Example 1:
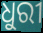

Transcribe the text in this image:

ଧୁରୀ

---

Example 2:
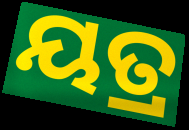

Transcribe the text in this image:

ୟତ୍ର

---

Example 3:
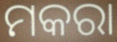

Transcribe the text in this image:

ମକରା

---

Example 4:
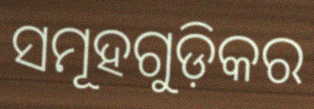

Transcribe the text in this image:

ସମୂହଗୁଡ଼ିକର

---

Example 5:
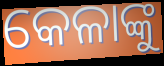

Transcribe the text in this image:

କେଳାଙ୍କୁ